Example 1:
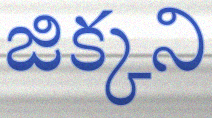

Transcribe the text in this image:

జిక్కని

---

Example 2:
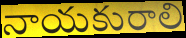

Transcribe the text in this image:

నాయకురాలి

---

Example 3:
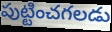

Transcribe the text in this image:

పుట్టించగలడు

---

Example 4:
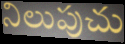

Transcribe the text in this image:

నిలుపుచు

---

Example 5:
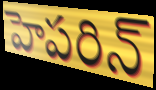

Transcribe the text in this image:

హెపరిన్